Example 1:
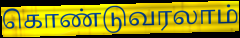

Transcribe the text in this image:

கொண்டுவரலாம்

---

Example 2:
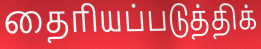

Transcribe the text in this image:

தைரியப்படுத்திக்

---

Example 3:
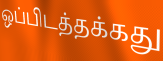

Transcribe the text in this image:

ஒப்பிடத்தக்கது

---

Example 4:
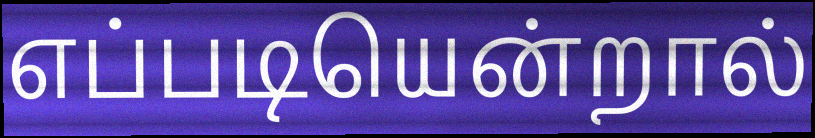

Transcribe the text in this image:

எப்படியென்றால்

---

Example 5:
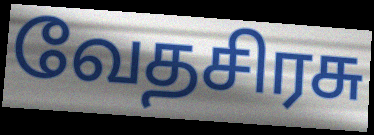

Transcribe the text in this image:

வேதசிரசு